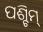
ପଶ୍ଚିମ୍